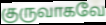
குருவாகவே